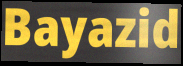
Bayazid